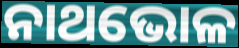
ନାଥଭୋଳ